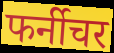
फर्नीचर